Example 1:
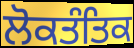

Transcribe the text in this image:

ਲੋਕਤੰਤਿਕ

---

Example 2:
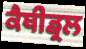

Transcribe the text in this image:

ਕੈਥੀਡ੍ਰਲ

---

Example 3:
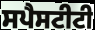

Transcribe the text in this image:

ਸਪੈਸਟੀਟੀ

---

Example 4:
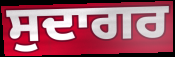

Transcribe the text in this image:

ਸੁਦਾਗਰ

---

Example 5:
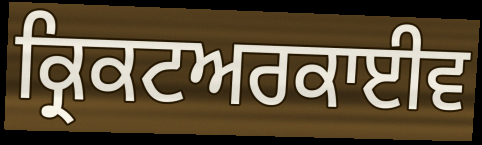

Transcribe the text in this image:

ਕ੍ਰਿਕਟਅਰਕਾਈਵ